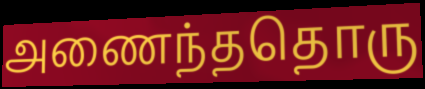
அணைந்ததொரு